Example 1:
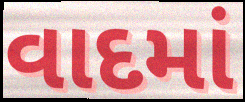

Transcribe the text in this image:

વાદમાં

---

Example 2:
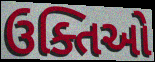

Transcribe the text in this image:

ઉક્તિઓ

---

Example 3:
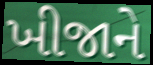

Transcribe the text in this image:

ખીજાને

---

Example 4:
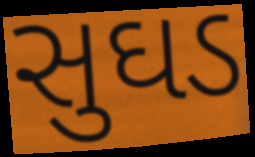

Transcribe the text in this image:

સુઘડ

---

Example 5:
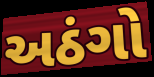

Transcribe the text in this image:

અઠંગો